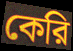
কেরি